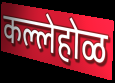
कल्लेहोळ